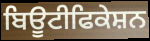
ਬਿਊਟੀਫਿਕੇਸ਼ਨ